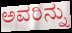
ಅವರಿನ್ನು